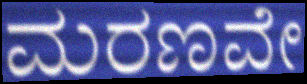
ಮರಣವೇ